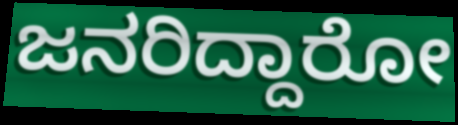
ಜನರಿದ್ದಾರೋ